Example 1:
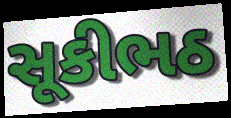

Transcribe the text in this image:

સૂકીભઠ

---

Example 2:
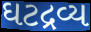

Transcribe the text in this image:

ઘટદ્રવ્ય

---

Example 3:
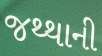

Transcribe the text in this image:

જથ્થાની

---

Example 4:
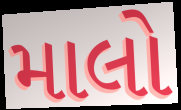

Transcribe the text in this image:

માલો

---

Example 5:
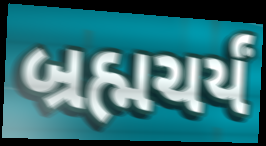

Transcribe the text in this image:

બ્રહ્મચર્યં